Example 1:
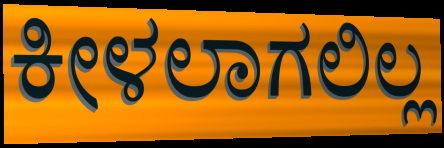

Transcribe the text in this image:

ಕೀಳಲಾಗಲಿಲ್ಲ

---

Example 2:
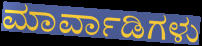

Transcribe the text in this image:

ಮಾರ್ವಾಡಿಗಳು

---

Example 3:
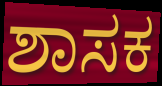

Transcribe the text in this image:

ಶಾಸಕ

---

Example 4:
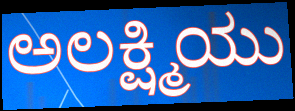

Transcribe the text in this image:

ಅಲಕ್ಷ್ಮಿಯು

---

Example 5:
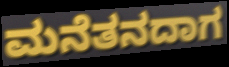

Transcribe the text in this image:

ಮನೆತನದಾಗ